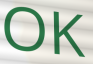
OK